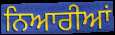
ਨਿਆਰੀਆਂ